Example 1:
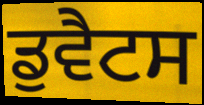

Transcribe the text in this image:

ਡੁਵੈਟਸ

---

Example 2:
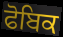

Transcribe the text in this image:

ਫੋਬਿਕ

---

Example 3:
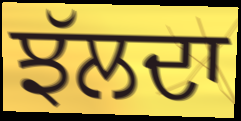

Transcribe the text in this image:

ਝੱਲਦਾ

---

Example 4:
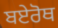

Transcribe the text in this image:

ਬਏਰੋਥ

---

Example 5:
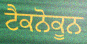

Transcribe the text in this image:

ਟੈਕਨੋਕੂਨ